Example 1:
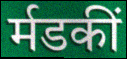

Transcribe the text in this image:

र्मडकीं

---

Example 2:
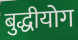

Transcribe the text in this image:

बुद्धीयोग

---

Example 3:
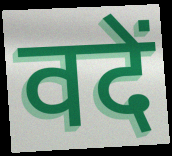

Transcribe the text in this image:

वदें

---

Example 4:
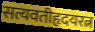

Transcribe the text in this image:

सत्यवतीहृदयरत्न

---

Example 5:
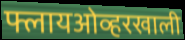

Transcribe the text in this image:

फ्लायओव्हरखाली